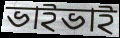
ভাইভাই